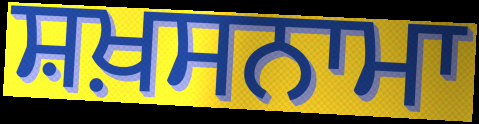
ਸ਼ਖ਼ਸਨਾਮਾ